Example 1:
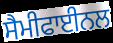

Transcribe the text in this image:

ਸੈਮੀਫਾਈਨਲ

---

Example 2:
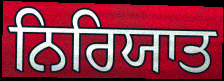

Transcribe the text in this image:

ਨਿਰਿਯਾਤ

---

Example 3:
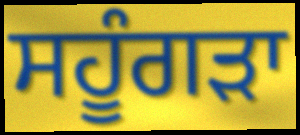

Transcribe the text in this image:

ਸਹੂੰਗੜਾ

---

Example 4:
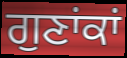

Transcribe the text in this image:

ਗੁਣਾਂਕਾਂ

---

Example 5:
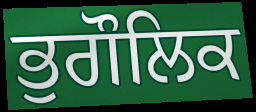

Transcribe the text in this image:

ਭੁਗੌਲਿਕ